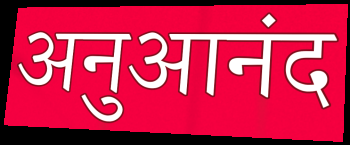
अनुआनंद